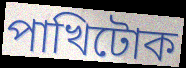
পাখিটোক